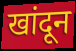
खांदून